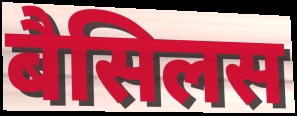
बैसिलस